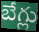
బేగ్లు